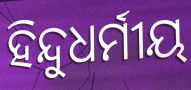
ହିନ୍ଦୁଧର୍ମୀୟ